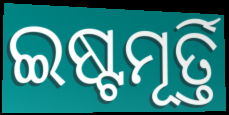
ଇଷ୍ଟମୂର୍ତ୍ତି